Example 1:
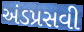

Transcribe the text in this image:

અંડપ્રસવી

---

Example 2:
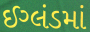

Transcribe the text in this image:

ઈગ્લંડમાં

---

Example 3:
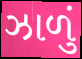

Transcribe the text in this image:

ઝાળું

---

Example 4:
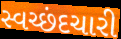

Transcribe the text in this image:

સ્વચ્છંદચારી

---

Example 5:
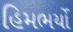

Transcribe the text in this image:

હિમભર્યો